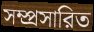
সম্প্রসারিত